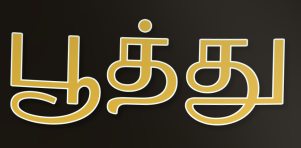
பூத்து